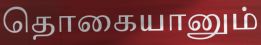
தொகையானும்